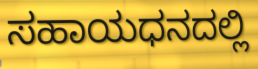
ಸಹಾಯಧನದಲ್ಲಿ